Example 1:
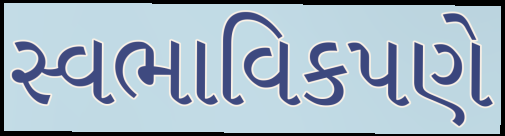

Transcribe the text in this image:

સ્વભાવિકપણે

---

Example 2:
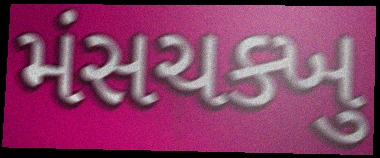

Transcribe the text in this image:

મંસચક્ખુ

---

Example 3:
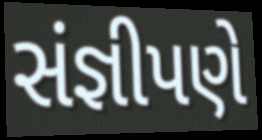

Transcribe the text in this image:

સંજ્ઞીપણે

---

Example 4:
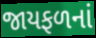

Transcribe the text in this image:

જાયફળનાં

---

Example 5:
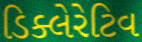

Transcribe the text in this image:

ડિક્લેરેટિવ